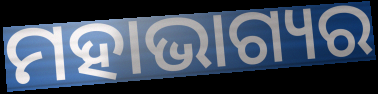
ମହାଭାଗ୍ୟର